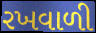
રખવાળી